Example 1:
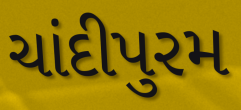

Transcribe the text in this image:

ચાંદીપુરમ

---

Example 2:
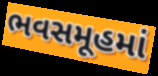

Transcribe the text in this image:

ભવસમૂહમાં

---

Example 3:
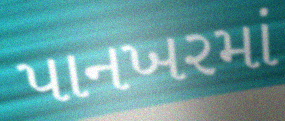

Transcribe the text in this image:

પાનખરમાં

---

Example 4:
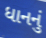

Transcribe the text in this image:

ધાનનું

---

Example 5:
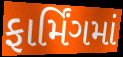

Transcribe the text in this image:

ફાર્મિંગમાં